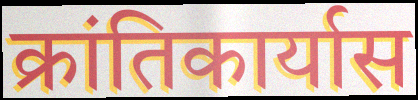
क्रांतिकार्यास